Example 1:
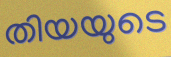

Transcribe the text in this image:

തിയയുടെ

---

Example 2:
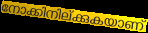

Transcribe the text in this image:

നോക്കിനില്ക്കുകയാണ്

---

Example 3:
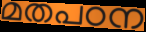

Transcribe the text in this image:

മതപഠന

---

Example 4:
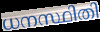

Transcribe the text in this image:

ധനസ്ഥിതി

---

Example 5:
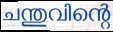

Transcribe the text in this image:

ചന്തുവിന്റെ